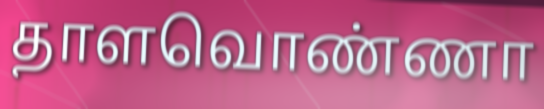
தாளவொண்ணா